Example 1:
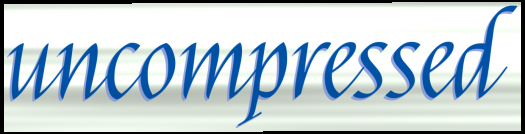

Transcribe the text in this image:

uncompressed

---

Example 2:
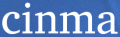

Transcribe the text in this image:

cinma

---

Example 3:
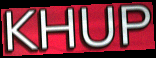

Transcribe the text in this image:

KHUP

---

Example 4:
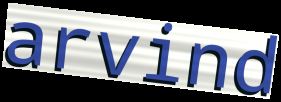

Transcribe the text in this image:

arvind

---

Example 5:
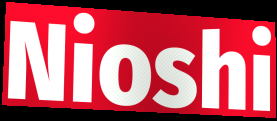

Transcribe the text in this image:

Nioshi